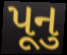
પૂનુ